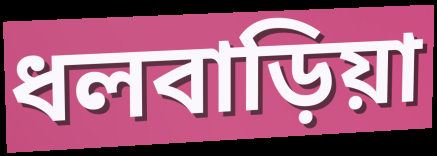
ধলবাড়িয়া